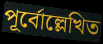
পূর্বোল্লেখিত